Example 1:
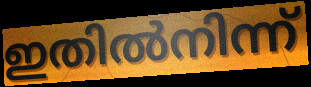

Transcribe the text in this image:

ഇതിൽനിന്ന്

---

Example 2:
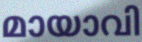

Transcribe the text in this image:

മായാവി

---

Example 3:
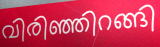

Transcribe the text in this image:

വിരിഞ്ഞിറങ്ങി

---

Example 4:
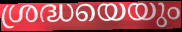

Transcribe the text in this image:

ശ്രദ്ധയെയും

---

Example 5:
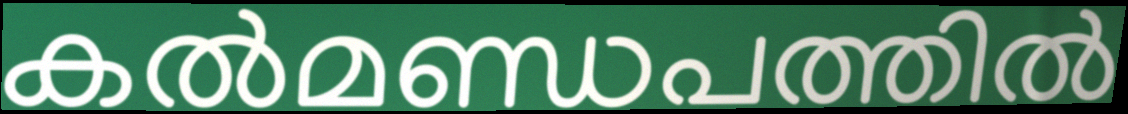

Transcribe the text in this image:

കൽമണ്ഡപത്തിൽ